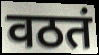
वठतं